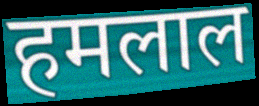
हमलाल